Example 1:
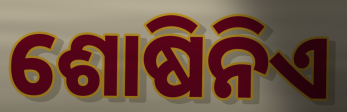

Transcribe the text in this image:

ଶୋଷିନିଏ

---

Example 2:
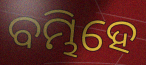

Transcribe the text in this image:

ବମ୍ଭିହେ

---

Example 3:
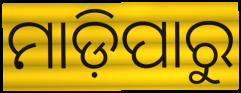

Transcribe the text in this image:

ମାଡ଼ିପାରୁ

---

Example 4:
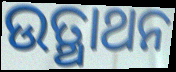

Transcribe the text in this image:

ଉତ୍ଥାଥନ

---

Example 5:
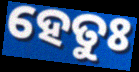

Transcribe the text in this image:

ହେତୁଃ